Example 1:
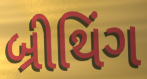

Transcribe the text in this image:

બ્રીથિંગ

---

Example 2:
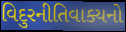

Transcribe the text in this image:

વિદુરનીતિવાક્યનો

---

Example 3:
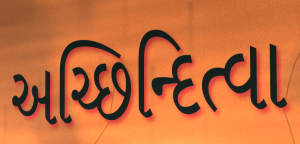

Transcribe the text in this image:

અચ્છિન્દિત્વા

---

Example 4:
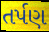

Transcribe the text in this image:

તર્પણ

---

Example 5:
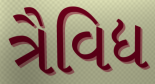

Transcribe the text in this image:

ત્રૈવિદ્ય